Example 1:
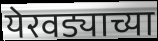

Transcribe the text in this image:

येरवड्याच्या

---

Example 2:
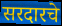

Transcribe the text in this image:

सरदारचे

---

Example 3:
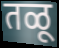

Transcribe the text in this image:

तळू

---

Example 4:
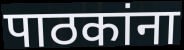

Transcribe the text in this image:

पाठकांना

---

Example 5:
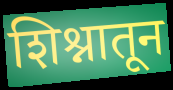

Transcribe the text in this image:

शिश्नातून